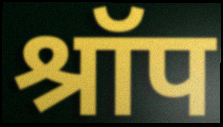
श्रॉप